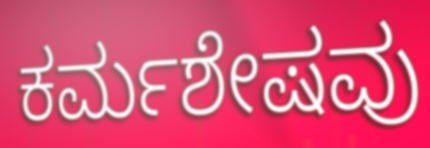
ಕರ್ಮಶೇಷವು